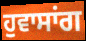
ਹੁਵਾਸਾਂਗ